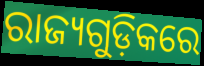
ରାଜ୍ୟଗୁଡ଼ିକରେ